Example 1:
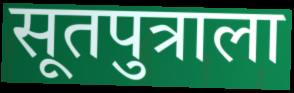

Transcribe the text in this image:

सूतपुत्राला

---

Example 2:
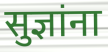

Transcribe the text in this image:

सुज्ञांना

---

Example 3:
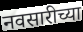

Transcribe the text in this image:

नवसारीच्या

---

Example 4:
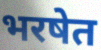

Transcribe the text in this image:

भरषेत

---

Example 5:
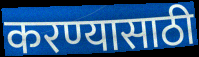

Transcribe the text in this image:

करण्‍यासाठी